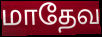
மாதேவ